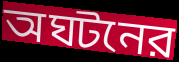
অঘটনের